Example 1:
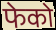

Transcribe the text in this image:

फेको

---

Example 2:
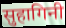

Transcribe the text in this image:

सुहागिनी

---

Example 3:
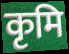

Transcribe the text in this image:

कृमि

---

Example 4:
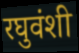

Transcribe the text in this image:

रघुवंशी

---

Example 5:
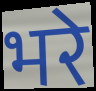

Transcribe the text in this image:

भरे